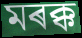
মৰক্ক